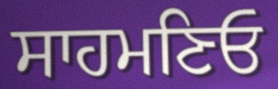
ਸਾਹਮਣਿਓ